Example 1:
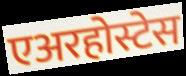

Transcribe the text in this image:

एअरहोस्टेस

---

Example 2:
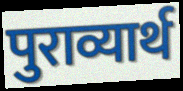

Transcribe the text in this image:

पुराव्यार्थ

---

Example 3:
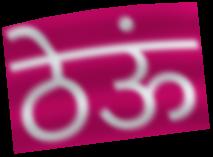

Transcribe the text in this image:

ठेऊं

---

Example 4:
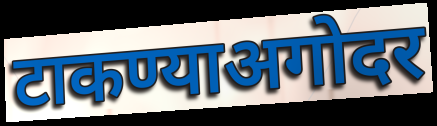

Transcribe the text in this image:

टाकण्याअगोदर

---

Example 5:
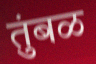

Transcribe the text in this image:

तुंबळ